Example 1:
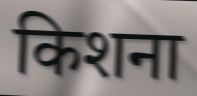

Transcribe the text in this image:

किशना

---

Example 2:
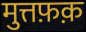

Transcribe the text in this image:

मुत्तफ़क़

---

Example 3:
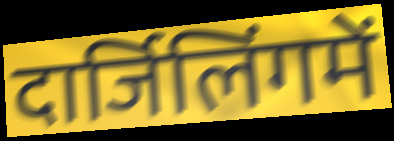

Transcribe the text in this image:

दार्जिलिंगमें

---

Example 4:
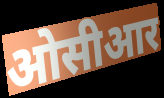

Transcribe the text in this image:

ओसीआर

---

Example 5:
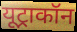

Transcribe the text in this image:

यूट्राकॉन